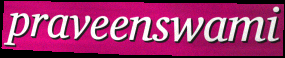
praveenswami